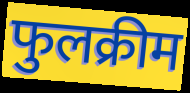
फुलक्रीम